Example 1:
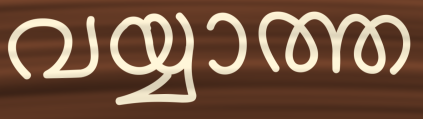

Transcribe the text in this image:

വയ്യാത്ത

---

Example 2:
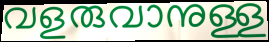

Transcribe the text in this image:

വളരുവാനുള്ള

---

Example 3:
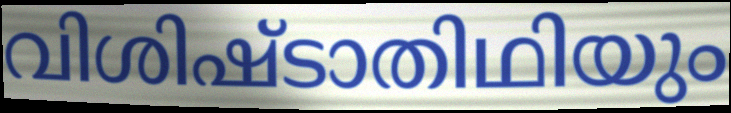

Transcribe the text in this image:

വിശിഷ്ടാതിഥിയും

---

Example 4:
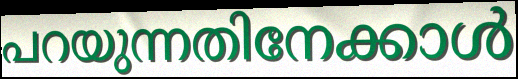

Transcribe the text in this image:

പറയുന്നതിനേക്കാൾ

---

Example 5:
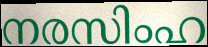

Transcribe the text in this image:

നരസിംഹ